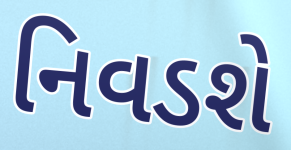
નિવડશે